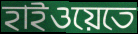
হাইওয়েতে